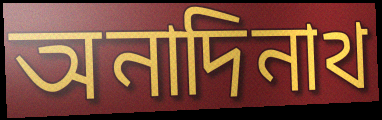
অনাদিনাথ